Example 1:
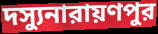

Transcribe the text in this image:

দস্যুনারায়ণপুর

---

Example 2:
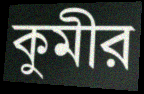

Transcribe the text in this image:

কুমীর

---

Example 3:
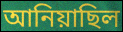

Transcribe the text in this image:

আনিয়াছিল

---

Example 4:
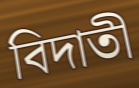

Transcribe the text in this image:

বিদাতী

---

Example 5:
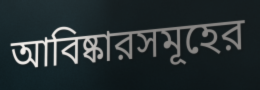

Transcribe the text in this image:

আবিষ্কারসমূহের